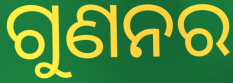
ଗୁଣନର